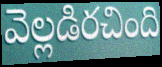
వెల్లడిరచింది